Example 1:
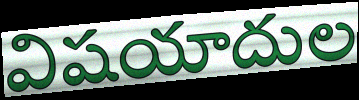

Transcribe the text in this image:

విషయాదుల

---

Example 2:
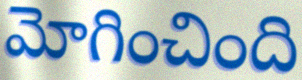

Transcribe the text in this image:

మోగించింది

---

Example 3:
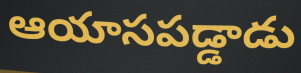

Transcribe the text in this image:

ఆయాసపడ్డాడు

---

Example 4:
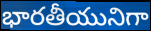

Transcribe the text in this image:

భారతీయునిగా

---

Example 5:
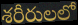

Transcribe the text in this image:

శరీరులలో